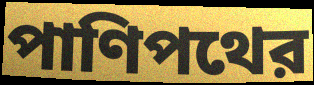
পাণিপথের